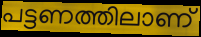
പട്ടണത്തിലാണ്